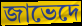
জাভেদে